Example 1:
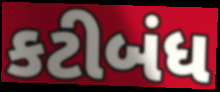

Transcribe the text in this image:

કટીબંધ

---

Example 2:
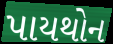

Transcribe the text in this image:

પાયથોન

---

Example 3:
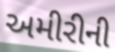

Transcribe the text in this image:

અમીરીની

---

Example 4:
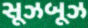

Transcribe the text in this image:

સૂઝબૂઝ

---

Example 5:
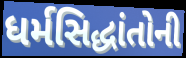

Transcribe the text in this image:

ધર્મસિદ્ધાંતોની